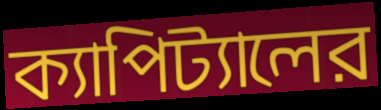
ক্যাপিট্যালের